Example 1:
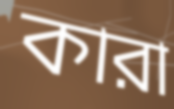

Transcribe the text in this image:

কারা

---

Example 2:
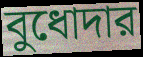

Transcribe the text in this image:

বুধোদার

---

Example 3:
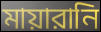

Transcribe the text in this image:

মায়ারানি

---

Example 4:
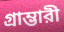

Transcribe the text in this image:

গ্রাম্ভারী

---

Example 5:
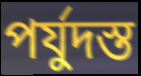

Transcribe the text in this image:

পর্যুদস্ত